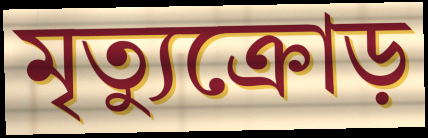
মৃত্যুক্রোড়